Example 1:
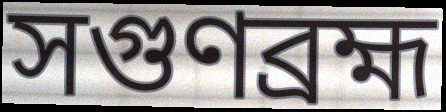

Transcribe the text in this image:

সগুণব্রহ্ম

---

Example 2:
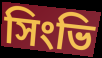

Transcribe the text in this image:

সিংভি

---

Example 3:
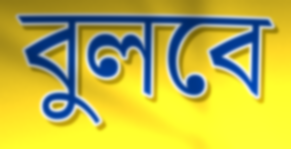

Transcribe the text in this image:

বুলবে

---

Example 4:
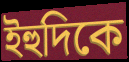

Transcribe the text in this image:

ইহুদিকে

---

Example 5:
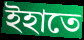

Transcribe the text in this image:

ইহাতে